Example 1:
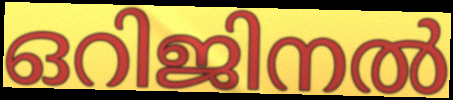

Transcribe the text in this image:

ഒറിജിനൽ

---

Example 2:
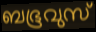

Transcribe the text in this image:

ബഭൂവുസ്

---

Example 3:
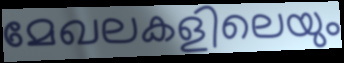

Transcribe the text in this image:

മേഖലകളിലെയും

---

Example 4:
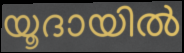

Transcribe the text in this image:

യൂദായിൽ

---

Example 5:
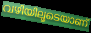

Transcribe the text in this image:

വഴിയിലൂടെയാണ്